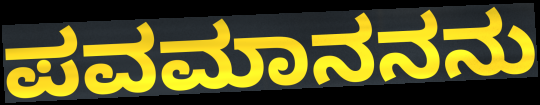
ಪವಮಾನನನು